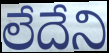
లేదేని